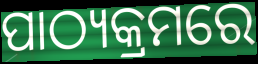
ପାଠ୍ୟକ୍ରମରେ